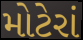
મોટેરાં